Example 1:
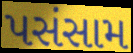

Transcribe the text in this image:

પસંસામ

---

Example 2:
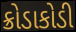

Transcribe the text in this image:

ક્રોડાકોડી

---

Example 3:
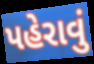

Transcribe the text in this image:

પહેરાવું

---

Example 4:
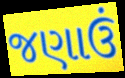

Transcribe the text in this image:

જણાઉં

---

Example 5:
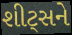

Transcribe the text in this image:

શીટ્સને